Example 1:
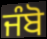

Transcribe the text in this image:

ਜੰਬੋ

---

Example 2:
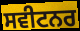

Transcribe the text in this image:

ਸਵੀਟਨਰ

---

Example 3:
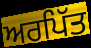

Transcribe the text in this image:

ਅਰਪਿੱਤ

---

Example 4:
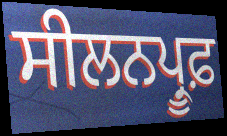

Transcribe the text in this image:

ਸੀਲਨਪ੍ਰੂਫ਼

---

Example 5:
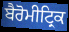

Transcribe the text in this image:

ਬੈਰੋਮੀਟ੍ਰਿਕ